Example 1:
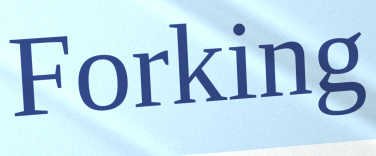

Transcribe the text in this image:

Forking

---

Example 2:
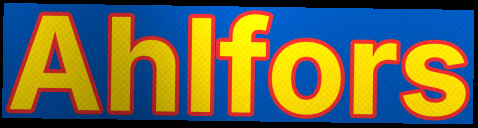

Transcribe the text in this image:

Ahlfors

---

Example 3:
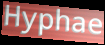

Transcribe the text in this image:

Hyphae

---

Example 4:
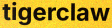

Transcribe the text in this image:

tigerclaw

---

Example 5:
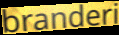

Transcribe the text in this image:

branderi